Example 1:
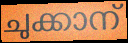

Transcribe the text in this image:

ചുക്കാന്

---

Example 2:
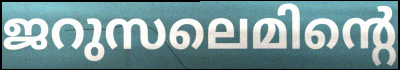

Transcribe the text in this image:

ജറുസലെമിന്റെ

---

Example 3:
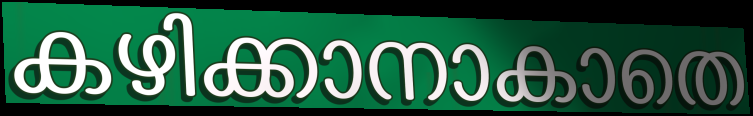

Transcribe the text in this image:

കഴിക്കാനാകാതെ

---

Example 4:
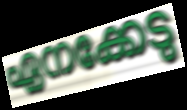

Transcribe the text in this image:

ഏനക്കേടു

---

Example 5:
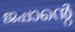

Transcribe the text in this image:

ജപ്പാന്റെ